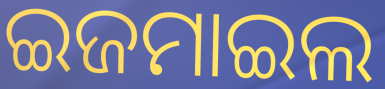
ଇଜମାଇଲ